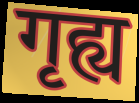
गृह्य